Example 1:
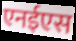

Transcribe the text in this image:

एनईएस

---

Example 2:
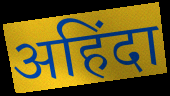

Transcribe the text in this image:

अहिंदा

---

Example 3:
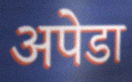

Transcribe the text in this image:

अपेडा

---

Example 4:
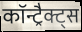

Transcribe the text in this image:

कॉन्ट्रैक्ट्स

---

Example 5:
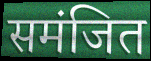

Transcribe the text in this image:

समंजित